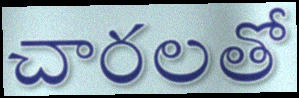
చారలతో